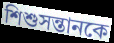
শিশুসন্তানকে